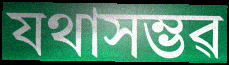
যথাসম্ভৱ